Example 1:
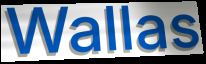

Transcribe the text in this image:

Wallas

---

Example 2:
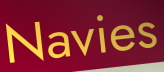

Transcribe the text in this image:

Navies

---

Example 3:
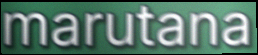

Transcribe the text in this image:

marutana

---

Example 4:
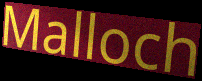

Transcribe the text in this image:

Malloch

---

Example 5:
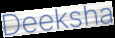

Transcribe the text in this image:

Deeksha